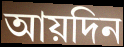
আয়দিন